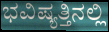
ಭವಿಷ್ಯತ್ತಿನಲ್ಲಿ